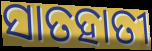
ସାତହାତୀ